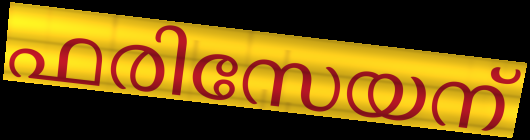
ഫരിസേയന്